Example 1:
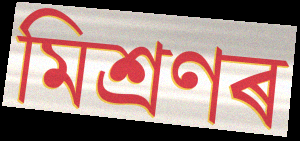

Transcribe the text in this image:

মিশ্ৰণৰ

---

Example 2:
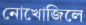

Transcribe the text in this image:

নোখোজিলে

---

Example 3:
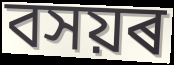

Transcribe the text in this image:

বসয়ৰ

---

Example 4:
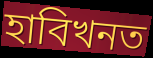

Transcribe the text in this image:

হাবিখনত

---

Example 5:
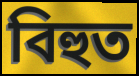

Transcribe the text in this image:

বিহুত